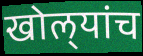
खोल्यांच